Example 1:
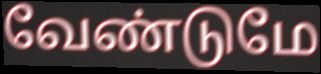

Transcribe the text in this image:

வேண்டுமே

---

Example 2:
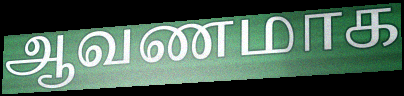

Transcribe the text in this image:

ஆவணமாக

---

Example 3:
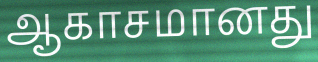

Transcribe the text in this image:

ஆகாசமானது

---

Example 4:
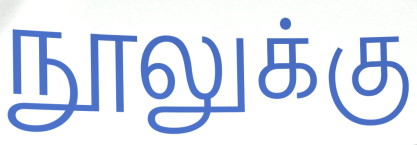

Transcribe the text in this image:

நூலுக்கு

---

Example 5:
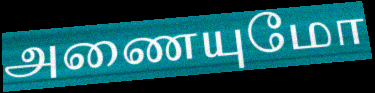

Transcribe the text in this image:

அணையுமோ